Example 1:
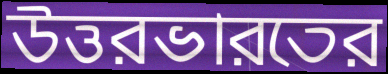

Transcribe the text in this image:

উত্তরভারতের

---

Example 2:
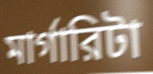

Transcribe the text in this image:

মার্গারিটা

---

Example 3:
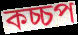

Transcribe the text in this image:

কচ্চপ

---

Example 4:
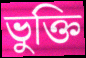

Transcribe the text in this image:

ভুক্তি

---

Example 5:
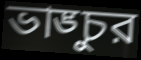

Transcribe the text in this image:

ভাঙ্চুর